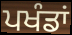
ਪਖੰਡਾਂ